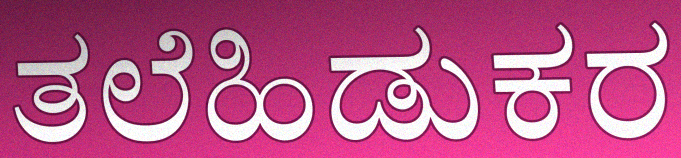
ತಲೆಹಿಡುಕರ